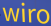
wiro